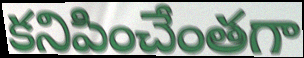
కనిపించేంతగా